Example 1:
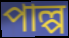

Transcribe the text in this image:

পাল্প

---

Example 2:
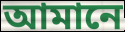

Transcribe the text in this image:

আমানে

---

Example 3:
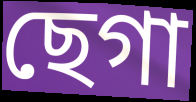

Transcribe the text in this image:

ছেগা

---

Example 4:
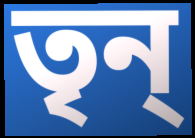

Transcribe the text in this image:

তৃন্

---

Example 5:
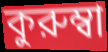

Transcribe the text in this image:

কুৰুম্বা